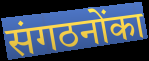
संगठनोंका